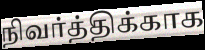
நிவர்த்திக்காக